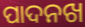
ପାଦନଖ